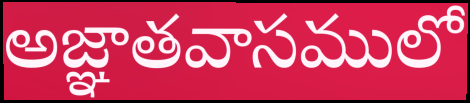
అజ్ఞాతవాసములో